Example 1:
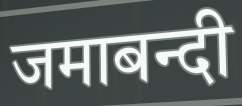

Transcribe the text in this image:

जमाबन्दी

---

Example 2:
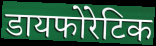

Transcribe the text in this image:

डायफोरेटिक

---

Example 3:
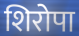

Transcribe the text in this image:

शिरोपा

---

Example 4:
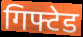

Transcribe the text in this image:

गिफ्टेड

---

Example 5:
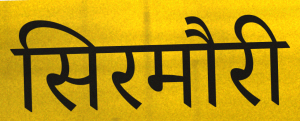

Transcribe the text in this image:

सिरमौरी